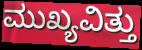
ಮುಖ್ಯವಿತ್ತು